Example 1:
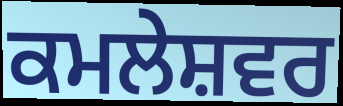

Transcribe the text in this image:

ਕਮਲੇਸ਼ਵਰ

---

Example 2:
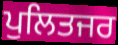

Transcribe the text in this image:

ਪੁਲਿਤਜਰ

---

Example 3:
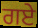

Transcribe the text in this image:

ਗਏ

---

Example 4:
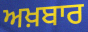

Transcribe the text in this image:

ਅਖ਼ਬਾਰ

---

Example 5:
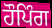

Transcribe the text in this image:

ਹੌਪਿੰਗ